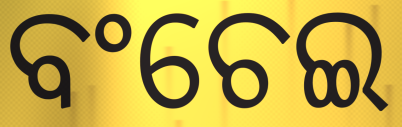
ବଂଚେଇ